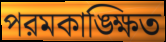
পরমকাঙ্ক্ষিত